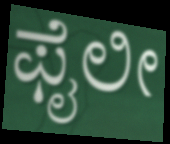
ಫೈಲೀ